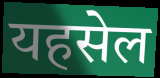
यहसेल